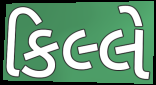
કિલ્લે